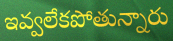
ఇవ్వలేకపోతున్నారు